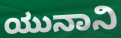
ಯುನಾನಿ